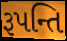
રૂપન્તિ